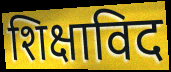
शिक्षाविद